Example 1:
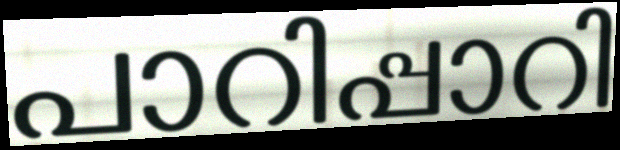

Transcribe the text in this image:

പാറിപ്പാറി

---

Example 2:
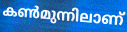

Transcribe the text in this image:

കൺമുന്നിലാണ്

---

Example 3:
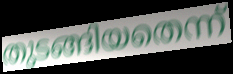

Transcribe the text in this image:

തുടങ്ങിയതെന്ന്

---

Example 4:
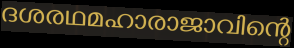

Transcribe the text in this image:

ദശരഥമഹാരാജാവിന്റെ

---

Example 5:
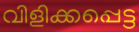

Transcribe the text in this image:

വിളിക്കപ്പെട്ട